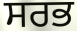
ਸਰਭ